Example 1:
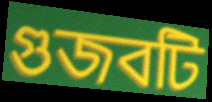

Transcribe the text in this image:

গুজবটি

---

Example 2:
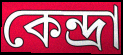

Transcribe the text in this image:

কেন্দ্রা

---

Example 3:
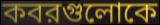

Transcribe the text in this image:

কবরগুলোকে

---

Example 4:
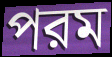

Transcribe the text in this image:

পরম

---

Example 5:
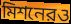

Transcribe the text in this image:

মিশনেরও